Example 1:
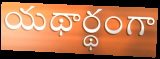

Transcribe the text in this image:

యథార్థంగా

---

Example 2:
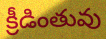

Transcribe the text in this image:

క్రీడింతువు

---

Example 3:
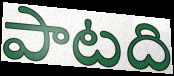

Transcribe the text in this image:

పాటది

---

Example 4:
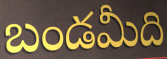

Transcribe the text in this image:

బండమీది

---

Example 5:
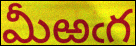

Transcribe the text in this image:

మీఱఁగ